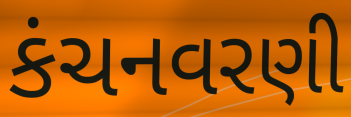
કંચનવરણી